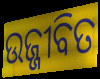
ଉଜ୍ଜୀବିତ